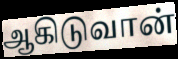
ஆகிடுவான்